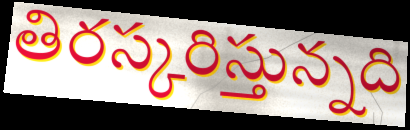
తిరస్కరిస్తున్నది